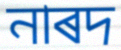
নাৰদ